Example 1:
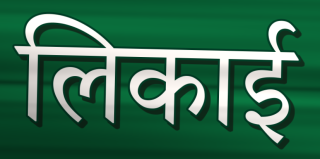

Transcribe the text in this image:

लिकाई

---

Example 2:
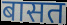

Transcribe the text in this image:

बासत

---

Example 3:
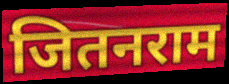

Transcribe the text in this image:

जितनराम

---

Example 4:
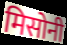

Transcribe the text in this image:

मिसोनी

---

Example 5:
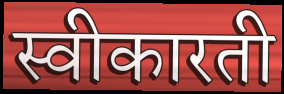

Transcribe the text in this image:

स्वीकारती